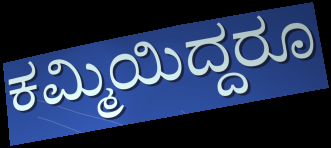
ಕಮ್ಮಿಯಿದ್ದರೂ